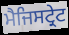
ਮੈਜਿਸਟ੍ਰੇਟ